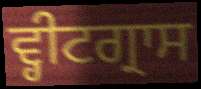
ਵ੍ਹੀਟਗ੍ਰਾਸ